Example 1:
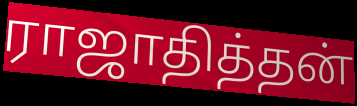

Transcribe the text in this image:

ராஜாதித்தன்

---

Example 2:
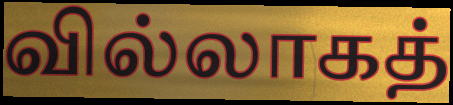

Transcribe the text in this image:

வில்லாகத்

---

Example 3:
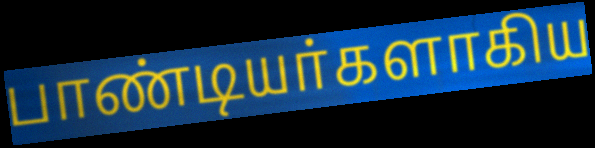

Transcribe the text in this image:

பாண்டியர்களாகிய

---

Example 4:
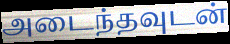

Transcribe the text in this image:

அடைந்தவுடன்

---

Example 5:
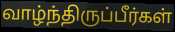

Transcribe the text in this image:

வாழ்ந்திருப்பீர்கள்